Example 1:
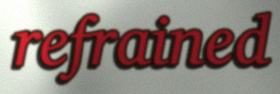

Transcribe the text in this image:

refrained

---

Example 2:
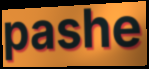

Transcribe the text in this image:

pashe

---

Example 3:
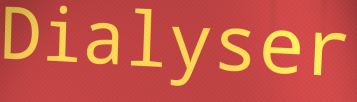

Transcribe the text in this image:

Dialyser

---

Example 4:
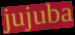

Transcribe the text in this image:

jujuba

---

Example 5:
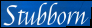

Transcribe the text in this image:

Stubborn